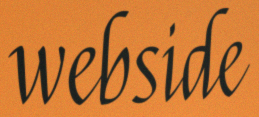
webside